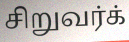
சிறுவர்க்